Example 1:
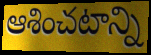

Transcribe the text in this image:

ఆశించటాన్ని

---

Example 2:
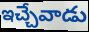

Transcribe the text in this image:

ఇచ్చేవాడు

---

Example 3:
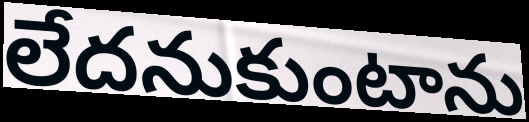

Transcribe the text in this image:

లేదనుకుంటాను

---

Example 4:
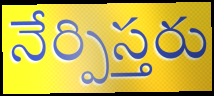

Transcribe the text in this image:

నేర్పిస్తరు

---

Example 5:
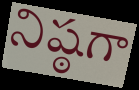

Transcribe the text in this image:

నిష్ఠగా